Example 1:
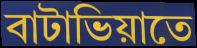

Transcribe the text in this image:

বাটাভিয়াতে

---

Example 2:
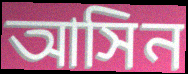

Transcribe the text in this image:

আসিন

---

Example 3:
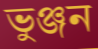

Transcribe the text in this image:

ভুঞ্জন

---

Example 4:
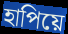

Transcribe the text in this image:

হাপিয়ে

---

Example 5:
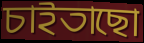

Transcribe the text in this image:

চাইতাছো